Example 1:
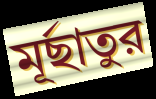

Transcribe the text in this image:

মূর্ছাতুর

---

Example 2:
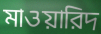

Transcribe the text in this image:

মাওয়ারিদ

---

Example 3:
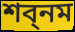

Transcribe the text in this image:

শব্নম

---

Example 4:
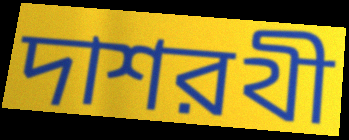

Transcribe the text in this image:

দাশরথী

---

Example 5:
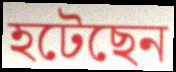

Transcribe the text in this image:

হটেছেন